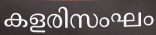
കളരിസംഘം